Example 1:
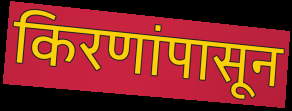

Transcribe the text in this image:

किरणांपासून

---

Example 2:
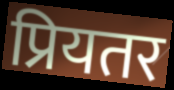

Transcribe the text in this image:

प्रियतर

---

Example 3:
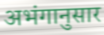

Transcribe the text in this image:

अभंगानुसार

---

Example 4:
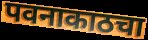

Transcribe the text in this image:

पवनाकाठचा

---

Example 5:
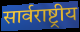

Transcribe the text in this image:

सार्वराष्ट्रीय